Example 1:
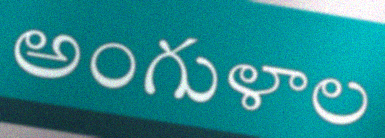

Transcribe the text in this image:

అంగుళాల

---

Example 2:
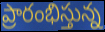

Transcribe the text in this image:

ప్రారంభిస్తున్న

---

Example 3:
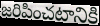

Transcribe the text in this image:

జరిపించటానికి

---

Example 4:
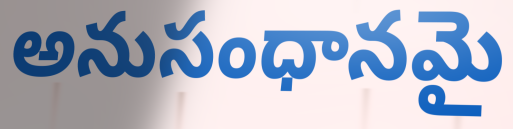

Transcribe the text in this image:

అనుసంధానమై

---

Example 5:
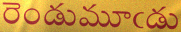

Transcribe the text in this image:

రెండుమూఁడు